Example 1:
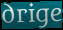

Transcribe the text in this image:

drige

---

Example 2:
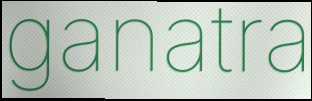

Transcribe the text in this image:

ganatra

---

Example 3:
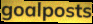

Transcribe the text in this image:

goalposts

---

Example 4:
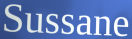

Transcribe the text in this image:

Sussane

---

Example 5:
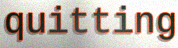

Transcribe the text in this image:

quitting